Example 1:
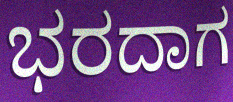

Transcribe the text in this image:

ಭರದಾಗ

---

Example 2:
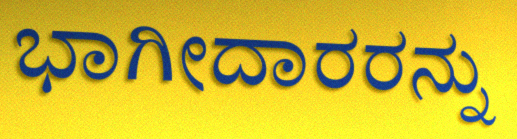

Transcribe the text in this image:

ಭಾಗೀದಾರರನ್ನು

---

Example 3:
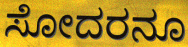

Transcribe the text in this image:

ಸೋದರನೂ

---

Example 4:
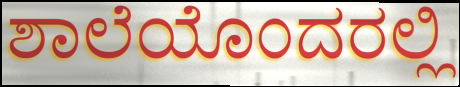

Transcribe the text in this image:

ಶಾಲೆಯೊಂದರಲ್ಲಿ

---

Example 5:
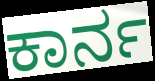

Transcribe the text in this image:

ಕಾರ್ನ